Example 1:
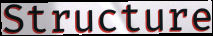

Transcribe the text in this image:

Structure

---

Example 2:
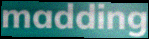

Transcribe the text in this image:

madding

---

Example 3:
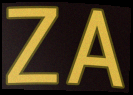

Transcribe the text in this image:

ZA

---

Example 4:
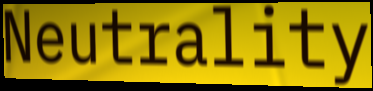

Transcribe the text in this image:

Neutrality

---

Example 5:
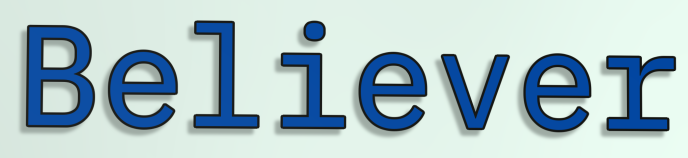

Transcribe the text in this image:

Believer